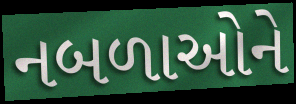
નબળાઓને